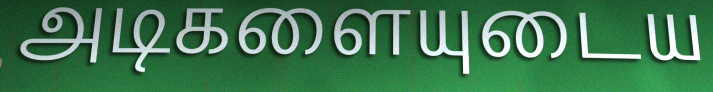
அடிகளையுடைய